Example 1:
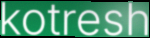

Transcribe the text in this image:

kotresh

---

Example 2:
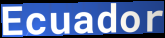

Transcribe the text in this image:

Ecuador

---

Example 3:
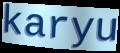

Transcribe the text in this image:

karyu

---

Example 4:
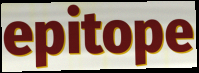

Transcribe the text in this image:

epitope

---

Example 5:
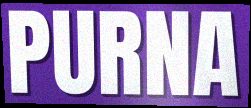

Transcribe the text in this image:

PURNA